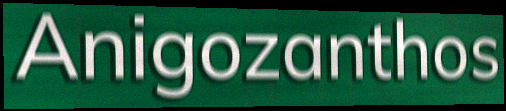
Anigozanthos